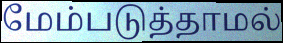
மேம்படுத்தாமல்